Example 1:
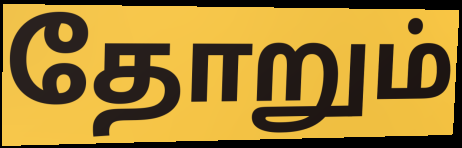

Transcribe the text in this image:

தோறும்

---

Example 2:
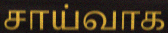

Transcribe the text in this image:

சாய்வாக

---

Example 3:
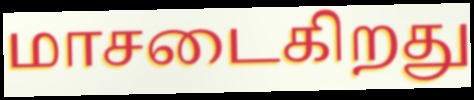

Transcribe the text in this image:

மாசடைகிறது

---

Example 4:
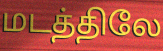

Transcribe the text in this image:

மடத்திலே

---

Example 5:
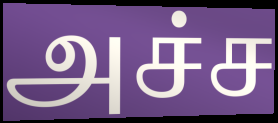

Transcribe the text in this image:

அச்ச